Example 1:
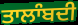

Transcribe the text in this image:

ਤਾਲਾੰਬਦੀ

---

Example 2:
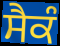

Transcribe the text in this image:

ਸੈਕੰ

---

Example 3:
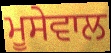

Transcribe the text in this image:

ਮੂਸੇਵਾਲ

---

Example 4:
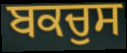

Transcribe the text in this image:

ਬਕਚੁਸ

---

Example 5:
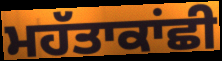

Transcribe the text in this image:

ਮਹੱਤਾਕਾਂਛੀ